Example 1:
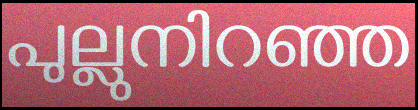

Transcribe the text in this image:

പുല്ലുനിറഞ്ഞ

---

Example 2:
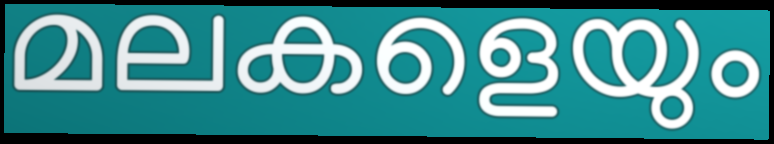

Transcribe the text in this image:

മലകളെയും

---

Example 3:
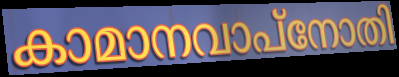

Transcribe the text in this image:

കാമാനവാപ്നോതി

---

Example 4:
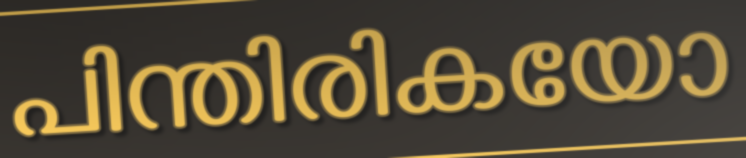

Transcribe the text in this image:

പിന്തിരികയോ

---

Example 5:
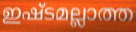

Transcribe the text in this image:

ഇഷ്ടമല്ലാത്ത